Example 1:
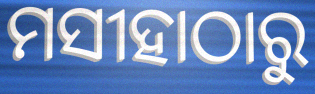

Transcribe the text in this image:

ମସୀହାଠାରୁ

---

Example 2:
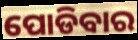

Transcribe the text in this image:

ପୋଡିବାର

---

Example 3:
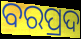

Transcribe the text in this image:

ବରପ୍ରଦ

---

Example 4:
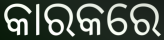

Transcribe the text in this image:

କାରକରେ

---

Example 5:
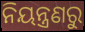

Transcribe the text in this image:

ନିୟନ୍ତ୍ରଣରୁ